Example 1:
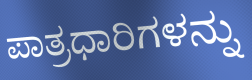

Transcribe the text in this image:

ಪಾತ್ರಧಾರಿಗಳನ್ನು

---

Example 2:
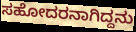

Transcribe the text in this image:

ಸಹೋದರನಾಗಿದ್ದನು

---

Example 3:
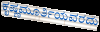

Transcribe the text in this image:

ಕೃಷ್ಣಮೂರ್ತಿಯವರದು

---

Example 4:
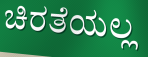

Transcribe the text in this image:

ಚಿರತೆಯಲ್ಲ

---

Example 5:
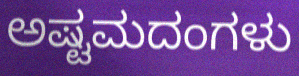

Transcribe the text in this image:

ಅಷ್ಟಮದಂಗಳು